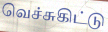
வெச்சுகிட்டு